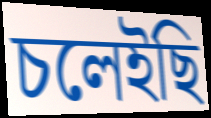
চলেইছি